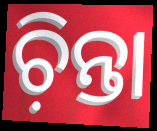
ଚ଼ିନ୍ତା